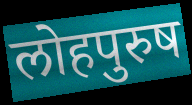
लोहपुरुष